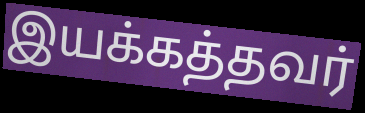
இயக்கத்தவர்